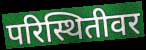
परिस्थितीवर